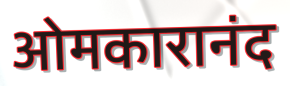
ओमकारानंद